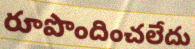
రూపొందించలేదు